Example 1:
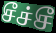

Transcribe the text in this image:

சீச்சீ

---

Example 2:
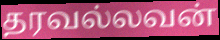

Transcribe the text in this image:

தரவல்லவன்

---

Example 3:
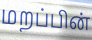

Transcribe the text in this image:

மறப்பின்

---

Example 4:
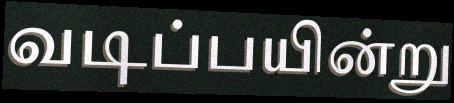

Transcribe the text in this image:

வடிப்பயின்று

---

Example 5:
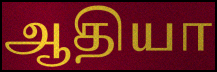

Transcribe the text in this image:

ஆதியா